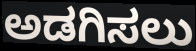
ಅಡಗಿಸಲು